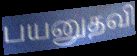
பயனுதவி